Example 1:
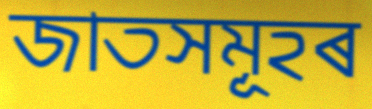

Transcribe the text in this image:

জাতসমূহৰ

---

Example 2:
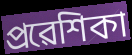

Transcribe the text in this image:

প্ৰৱেশিকা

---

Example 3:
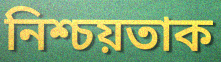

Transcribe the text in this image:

নিশ্চয়তাক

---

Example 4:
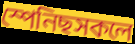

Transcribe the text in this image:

স্পেনিছসকলে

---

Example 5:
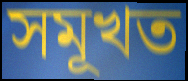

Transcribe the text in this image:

সমূখত